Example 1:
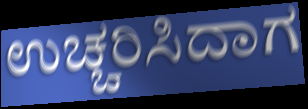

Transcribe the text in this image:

ಉಚ್ಚರಿಸಿದಾಗ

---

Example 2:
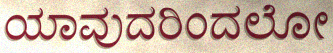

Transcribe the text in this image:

ಯಾವುದರಿಂದಲೋ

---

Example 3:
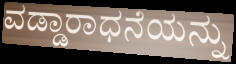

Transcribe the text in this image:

ವಡ್ಡಾರಾಧನೆಯನ್ನು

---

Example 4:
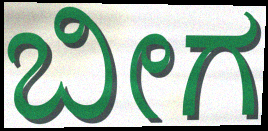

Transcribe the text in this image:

ಬೀಗ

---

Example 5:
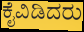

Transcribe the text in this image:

ಕೈವಿಡಿದರು